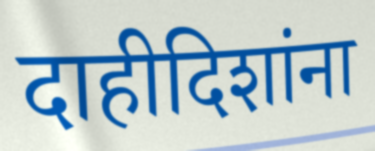
दाहीदिशांना